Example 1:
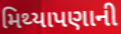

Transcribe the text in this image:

મિથ્યાપણાની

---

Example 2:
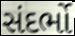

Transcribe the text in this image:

સંદર્ભો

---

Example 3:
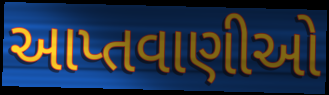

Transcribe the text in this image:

આપ્તવાણીઓ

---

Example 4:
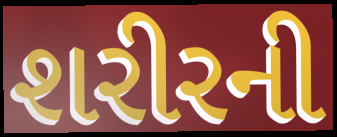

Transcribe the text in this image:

શરીરની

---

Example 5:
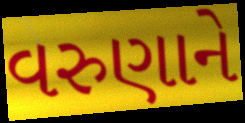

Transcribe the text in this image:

વરુણાને